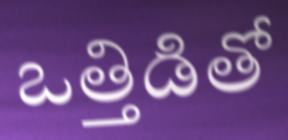
ఒత్తిడితో